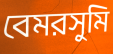
বেমরসুমি